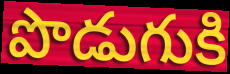
పొడుగుకి